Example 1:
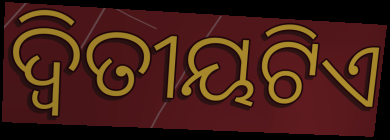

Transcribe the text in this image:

ଦ୍ୱିତୀୟଟିଏ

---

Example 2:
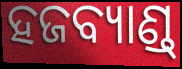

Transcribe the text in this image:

ହଜବ୍ୟାଣ୍ଡ୍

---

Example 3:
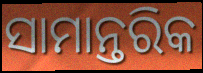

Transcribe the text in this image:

ସାମାନ୍ତରିକ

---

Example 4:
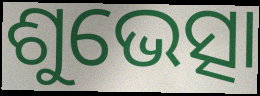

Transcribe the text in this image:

ଶୁଭେତ୍ସା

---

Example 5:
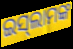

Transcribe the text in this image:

ଇସ୍‌ଲାମଙ୍କ